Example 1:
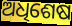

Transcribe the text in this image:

ଅଧିଶେଷ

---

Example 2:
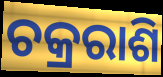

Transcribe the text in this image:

ଚକ୍ରରାଶି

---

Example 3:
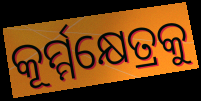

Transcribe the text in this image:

କୂର୍ମ୍ମକ୍ଷେତ୍ରକୁ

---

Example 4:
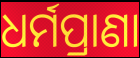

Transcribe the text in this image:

ଧର୍ମପ୍ରାଣା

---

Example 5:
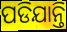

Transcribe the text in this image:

ପଡିଯାନ୍ତି